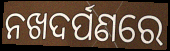
ନଖଦର୍ପଣରେ